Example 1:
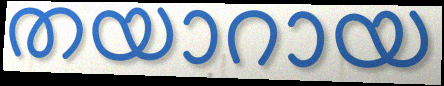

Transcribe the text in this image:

തയാറായ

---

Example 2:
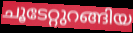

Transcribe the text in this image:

ചൂടേറ്റുറങ്ങിയ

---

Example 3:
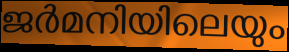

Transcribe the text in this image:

ജർമനിയിലെയും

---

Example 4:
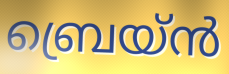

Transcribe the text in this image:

ബ്രെയ്ൻ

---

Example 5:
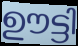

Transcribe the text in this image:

ഊട്ടി